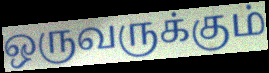
ஒருவருக்கும்